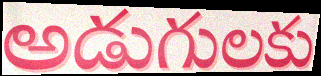
అడుగులకు